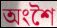
অংশৈ